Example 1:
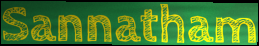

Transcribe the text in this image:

Sannatham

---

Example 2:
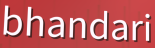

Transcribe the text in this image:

bhandari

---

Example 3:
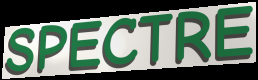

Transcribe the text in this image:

SPECTRE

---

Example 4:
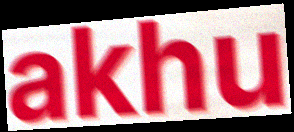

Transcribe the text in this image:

akhu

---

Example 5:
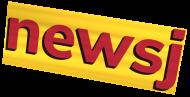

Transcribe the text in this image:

newsj